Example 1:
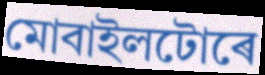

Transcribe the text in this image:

মোবাইলটোৰে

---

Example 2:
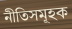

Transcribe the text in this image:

নীতিসমূহক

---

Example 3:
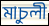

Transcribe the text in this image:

মাচুলী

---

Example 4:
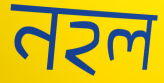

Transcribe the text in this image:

নহল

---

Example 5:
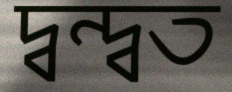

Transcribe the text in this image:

দ্বন্দ্বত